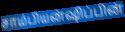
சாம்பியன்ஷிப்பின்